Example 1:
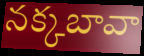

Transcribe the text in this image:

నక్కబావా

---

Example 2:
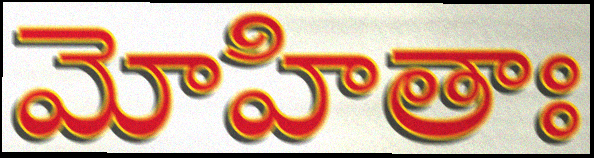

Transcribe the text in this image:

మోహితాః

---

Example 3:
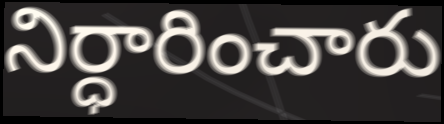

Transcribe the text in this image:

నిర్ధారించారు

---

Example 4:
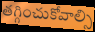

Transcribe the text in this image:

తగ్గించుకోవాల్సి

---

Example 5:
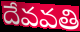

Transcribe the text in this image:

దేవవతి